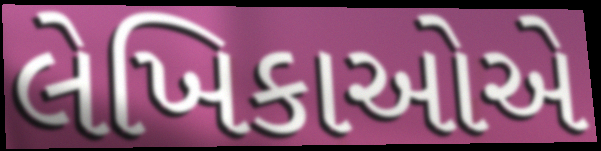
લેખિકાઓએ